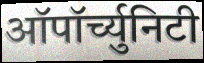
ऑपॉर्च्युनिटी